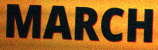
MARCH